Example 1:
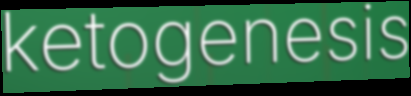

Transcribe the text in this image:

ketogenesis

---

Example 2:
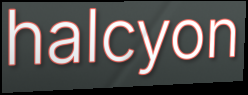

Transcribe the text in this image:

halcyon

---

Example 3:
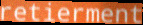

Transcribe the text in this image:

retierment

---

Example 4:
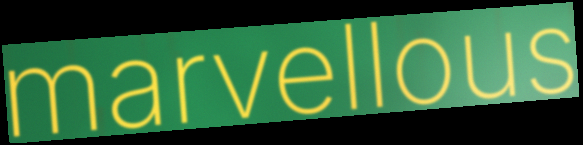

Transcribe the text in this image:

marvellous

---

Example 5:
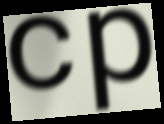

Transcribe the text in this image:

cp